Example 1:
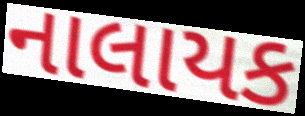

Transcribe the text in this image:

નાલાયક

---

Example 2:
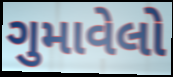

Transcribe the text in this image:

ગુમાવેલો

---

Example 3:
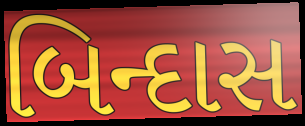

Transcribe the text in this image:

બિન્દાસ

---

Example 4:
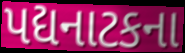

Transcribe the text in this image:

પદ્યનાટકના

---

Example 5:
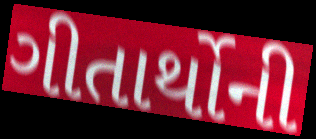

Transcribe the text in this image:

ગીતાર્થોની